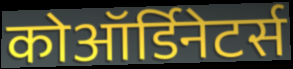
कोऑर्डिनेटर्स